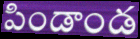
పిండాండ